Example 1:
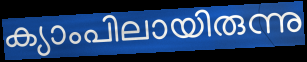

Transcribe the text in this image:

ക്യാംപിലായിരുന്നു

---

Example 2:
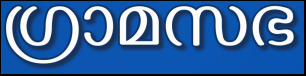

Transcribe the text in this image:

ഗ്രാമസഭ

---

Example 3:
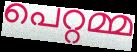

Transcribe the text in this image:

പെറ്റമ്മ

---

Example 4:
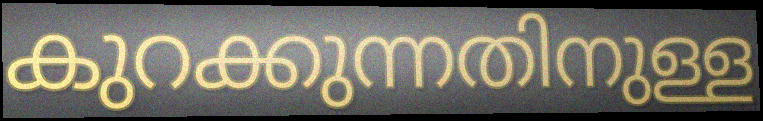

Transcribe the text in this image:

കുറക്കുന്നതിനുള്ള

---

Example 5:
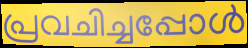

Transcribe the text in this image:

പ്രവചിച്ചപ്പോൾ